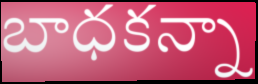
బాధకన్నా